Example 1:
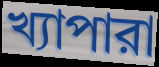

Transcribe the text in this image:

খ্যাপারা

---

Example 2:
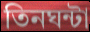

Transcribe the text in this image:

তিনঘন্টা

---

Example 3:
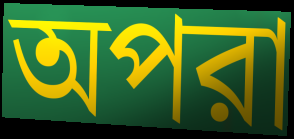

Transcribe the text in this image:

অপরা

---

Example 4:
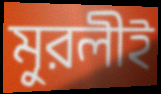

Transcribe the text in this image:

মুরলীই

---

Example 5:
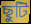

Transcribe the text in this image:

ছুটি